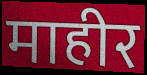
माहीर